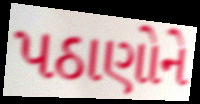
પઠાણોને